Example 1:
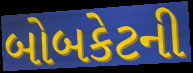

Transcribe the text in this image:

બોબકેટની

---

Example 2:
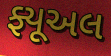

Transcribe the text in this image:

ફ્યૂઅલ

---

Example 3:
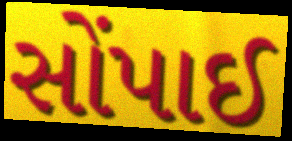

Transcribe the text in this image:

સોંપાઈ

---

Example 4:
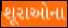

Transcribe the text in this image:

શૂરાઓના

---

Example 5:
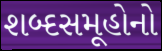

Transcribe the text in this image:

શબ્દસમૂહોનો